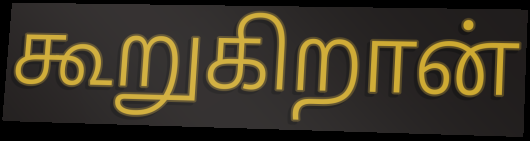
கூறுகிறான்